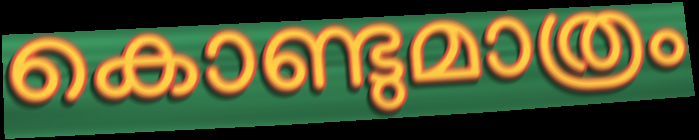
കൊണ്ടുമാത്രം